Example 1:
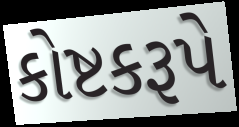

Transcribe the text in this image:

કોષ્ટકરૂપે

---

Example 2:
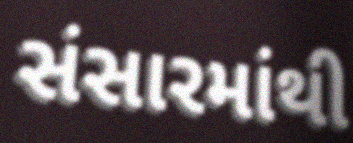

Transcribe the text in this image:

સંસારમાંથી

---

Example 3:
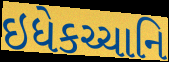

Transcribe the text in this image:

ઇધેકચ્ચાનિ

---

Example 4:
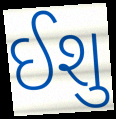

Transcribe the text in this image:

ઈશુ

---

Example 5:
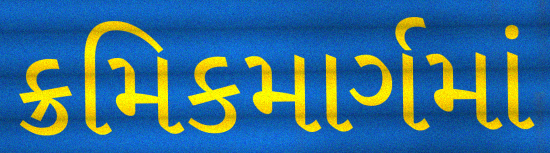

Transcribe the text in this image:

ક્રમિકમાર્ગમાં